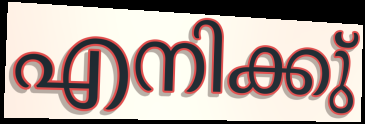
എനിക്കു്